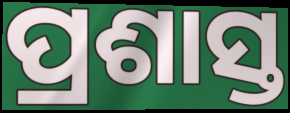
ପ୍ରଶାସ୍ତ